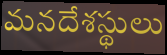
మనదేశస్థులు